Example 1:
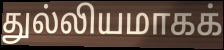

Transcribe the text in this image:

துல்லியமாகக்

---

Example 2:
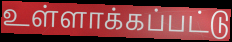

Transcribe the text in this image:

உள்ளாக்கப்பட்டு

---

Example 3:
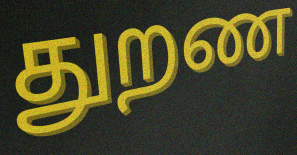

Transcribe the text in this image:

துறண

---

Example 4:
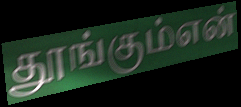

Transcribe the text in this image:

தூங்கும்என்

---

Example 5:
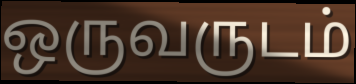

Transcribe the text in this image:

ஒருவருடம்